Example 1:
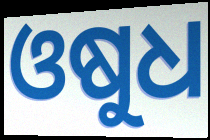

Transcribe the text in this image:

ଓଷୁଧ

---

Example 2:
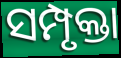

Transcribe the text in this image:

ସମ୍ପୃକ୍ତା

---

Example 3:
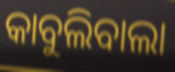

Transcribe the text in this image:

କାବୁଲିବାଲା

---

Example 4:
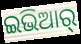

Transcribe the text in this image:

ଇଭିଆର୍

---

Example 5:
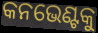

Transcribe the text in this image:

କନଭେଣ୍ଟକୁ